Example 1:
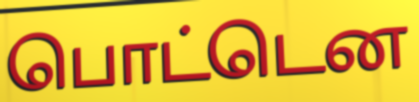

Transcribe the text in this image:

பொட்டென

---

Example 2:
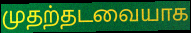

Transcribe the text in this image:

முதற்தடவையாக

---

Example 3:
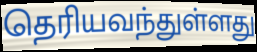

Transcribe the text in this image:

தெரியவந்துள்ளது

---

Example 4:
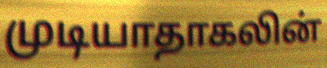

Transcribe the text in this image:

முடியாதாகலின்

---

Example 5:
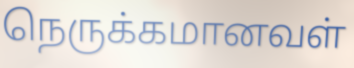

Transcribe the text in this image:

நெருக்கமானவள்